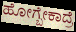
ಹೋಗ್ಬೇಕಾದ್ರೆ